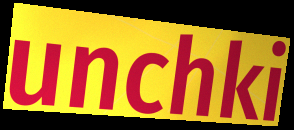
unchki